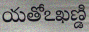
యతోఽఖణ్డి